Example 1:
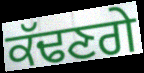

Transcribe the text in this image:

ਕੱਢਣਗੇ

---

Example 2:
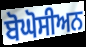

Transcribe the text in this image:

ਬੋਘੋਸੀਅਨ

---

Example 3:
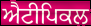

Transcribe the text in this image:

ਐਟੀਪਿਕਲ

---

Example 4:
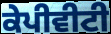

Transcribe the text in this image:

ਕੇਪੀਵੀਟੀ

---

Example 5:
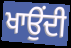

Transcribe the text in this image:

ਖਾਉਂਦੀ